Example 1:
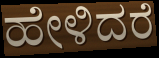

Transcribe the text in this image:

ಹೇಳಿದರೆ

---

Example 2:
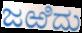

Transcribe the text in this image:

ಜಱಿದು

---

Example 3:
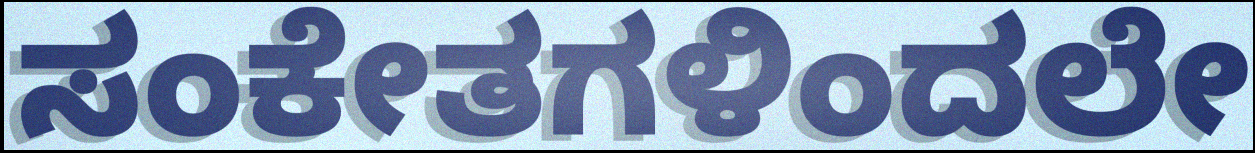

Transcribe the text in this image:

ಸಂಕೇತಗಳಿಂದಲೇ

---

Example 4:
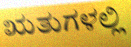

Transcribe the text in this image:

ಋತುಗಳಲ್ಲಿ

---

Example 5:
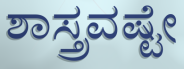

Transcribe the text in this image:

ಶಾಸ್ತ್ರವಷ್ಟೇ